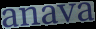
anava